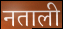
नताली